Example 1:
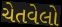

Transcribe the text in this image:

ચેતવેલો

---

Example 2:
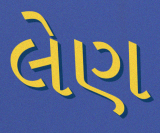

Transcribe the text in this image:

લેણ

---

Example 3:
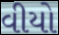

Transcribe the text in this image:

વીયો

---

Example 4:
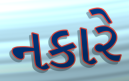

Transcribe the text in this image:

નકારે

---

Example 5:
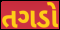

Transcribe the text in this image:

તગડો